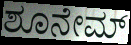
ಶೂನೇಮ್